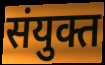
संयुक्त